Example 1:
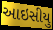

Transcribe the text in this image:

આઇસીયુ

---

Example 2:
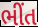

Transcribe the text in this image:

ભીંત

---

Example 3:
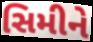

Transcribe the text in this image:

સિમીને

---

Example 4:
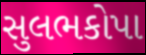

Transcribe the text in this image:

સુલભકોપા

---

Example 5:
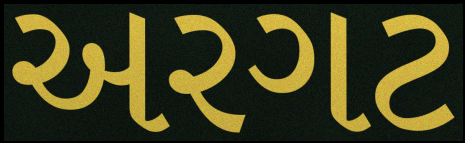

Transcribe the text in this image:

અરગટ